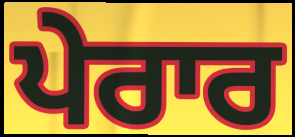
ਪੇਰਾਰ